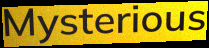
Mysterious